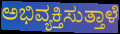
ಅಭಿವ್ಯಕ್ತಿಸುತ್ತಾಳೆ